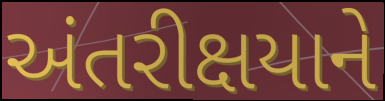
અંતરીક્ષયાને